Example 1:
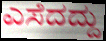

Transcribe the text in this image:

ಎಸೆದದ್ದು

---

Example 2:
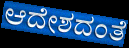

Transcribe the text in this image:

ಆದೇಶದಂತೆ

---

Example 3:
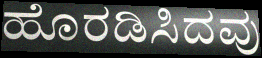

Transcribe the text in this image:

ಹೊರಡಿಸಿದವು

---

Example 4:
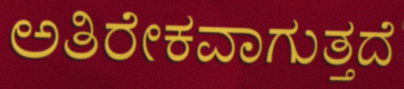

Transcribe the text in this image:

ಅತಿರೇಕವಾಗುತ್ತದೆ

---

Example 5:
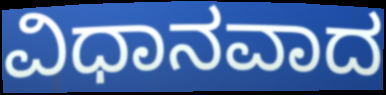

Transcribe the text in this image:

ವಿಧಾನವಾದ